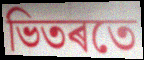
ভিতৰতে